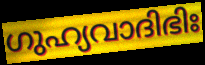
ഗുഹ്യവാദിഭിഃ